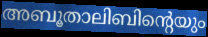
അബൂതാലിബിന്റെയും